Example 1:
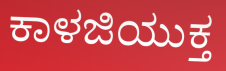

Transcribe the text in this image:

ಕಾಳಜಿಯುಕ್ತ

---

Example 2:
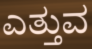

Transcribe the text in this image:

ಎತ್ತುವ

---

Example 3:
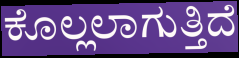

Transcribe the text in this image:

ಕೊಲ್ಲಲಾಗುತ್ತಿದೆ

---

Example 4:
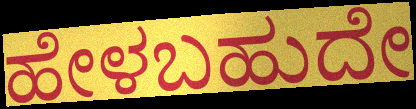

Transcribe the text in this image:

ಹೇಳಬಹುದೇ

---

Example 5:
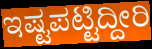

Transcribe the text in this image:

ಇಷ್ಟಪಟ್ಟಿದ್ದೀರಿ